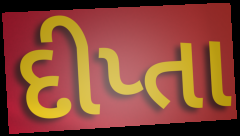
દીપ્તા